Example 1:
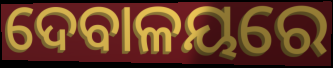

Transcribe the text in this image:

ଦେବାଳୟରେ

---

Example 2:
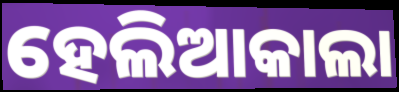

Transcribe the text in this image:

ହେଲିଆକାଲା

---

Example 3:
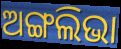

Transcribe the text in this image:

ଅଙ୍ଗଲିଭା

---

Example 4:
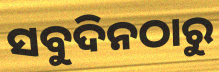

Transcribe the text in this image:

ସବୁଦିନଠାରୁ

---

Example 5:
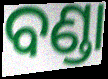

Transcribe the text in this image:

ବଣ୍ଡା